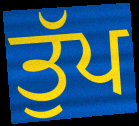
ਤੁੱਪ